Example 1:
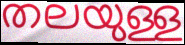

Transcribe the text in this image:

തലയുള്ള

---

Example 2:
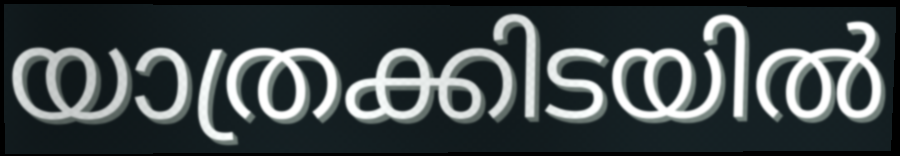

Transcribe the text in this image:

യാത്രക്കിടയിൽ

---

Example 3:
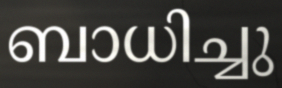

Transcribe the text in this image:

ബാധിച്ചു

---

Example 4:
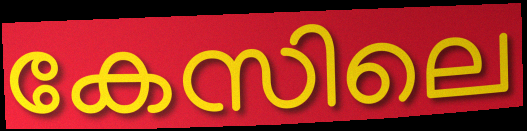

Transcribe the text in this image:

കേസിലെ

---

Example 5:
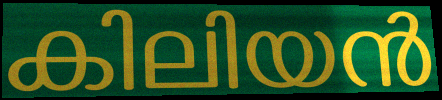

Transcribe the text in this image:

കിലിയൻ